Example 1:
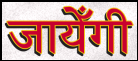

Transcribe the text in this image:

जायेँगी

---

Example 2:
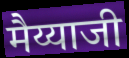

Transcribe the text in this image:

मैय्याजी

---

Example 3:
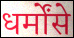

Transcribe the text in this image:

धर्मोंसे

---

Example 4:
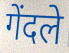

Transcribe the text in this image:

गेंदले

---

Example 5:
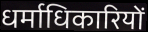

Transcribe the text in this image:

धर्माधिकारियों